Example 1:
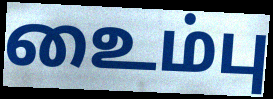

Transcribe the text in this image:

உைம்பு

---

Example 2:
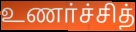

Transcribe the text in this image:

உணர்ச்சித்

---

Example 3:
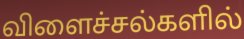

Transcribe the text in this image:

விளைச்சல்களில்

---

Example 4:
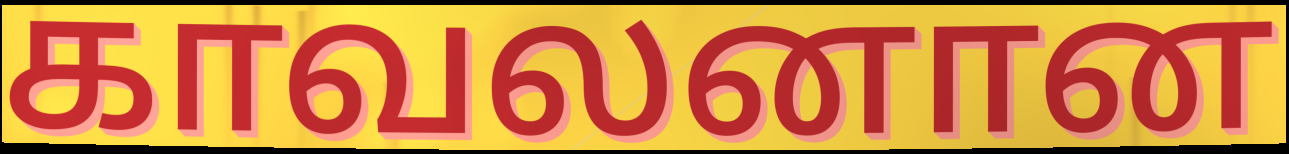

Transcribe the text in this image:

காவலனான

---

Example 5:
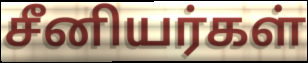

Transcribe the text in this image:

சீனியர்கள்